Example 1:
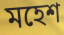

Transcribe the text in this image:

মহেশ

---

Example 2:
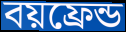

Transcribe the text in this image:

বয়ফ্রেন্ড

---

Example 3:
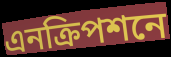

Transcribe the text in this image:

এনক্রিপশনে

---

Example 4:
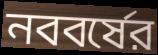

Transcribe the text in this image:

নববর্ষের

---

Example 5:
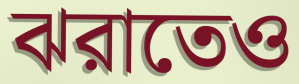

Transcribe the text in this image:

ঝরাতেও